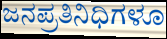
ಜನಪ್ರತಿನಿಧಿಗಳೂ